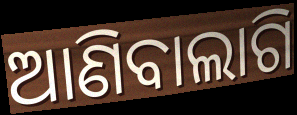
ଆଣିବାଲାଗି